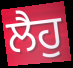
ਲੈਹੁ